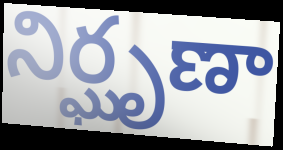
నిర్ఘృణా